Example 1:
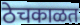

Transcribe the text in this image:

ठेचकाळत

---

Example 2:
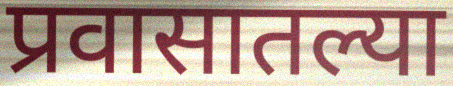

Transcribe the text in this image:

प्रवासातल्या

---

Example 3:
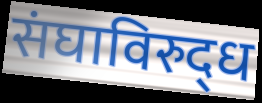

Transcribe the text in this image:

संघाविरुद्ध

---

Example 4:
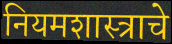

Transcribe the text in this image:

नियमशास्त्राचे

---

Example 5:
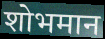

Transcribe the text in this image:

शोभमान